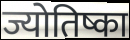
ज्योतिष्का